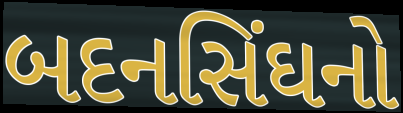
બદનસિંઘનો